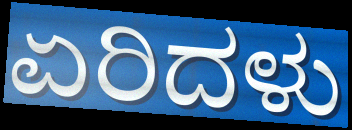
ಏರಿದಳು